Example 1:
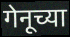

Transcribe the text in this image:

गेनूच्या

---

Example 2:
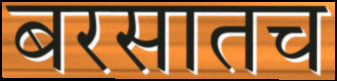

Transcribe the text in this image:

बरसातच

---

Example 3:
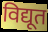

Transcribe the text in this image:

विद्यूत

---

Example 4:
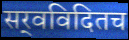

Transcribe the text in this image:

सर्वविदितच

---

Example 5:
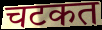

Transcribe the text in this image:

चटकत